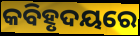
କବିହୃଦୟରେ